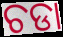
ଚଡା